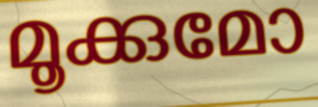
മൂക്കുമോ